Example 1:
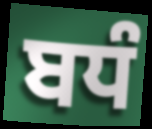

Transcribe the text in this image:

ਬਧੰ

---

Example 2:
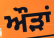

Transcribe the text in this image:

ਔੜਾਂ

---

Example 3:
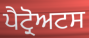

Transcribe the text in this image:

ਪੈਟ੍ਰੋਅਟਸ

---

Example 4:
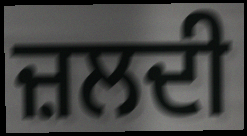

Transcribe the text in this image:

ਜ਼ਲਦੀ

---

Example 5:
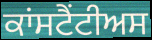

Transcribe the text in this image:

ਕਾਂਸਟੈਂਟੀਅਸ